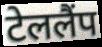
टेललैंप